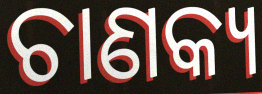
ଚାଣକ୍ଯ